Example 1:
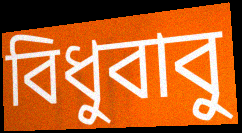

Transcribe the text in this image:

বিধুবাবু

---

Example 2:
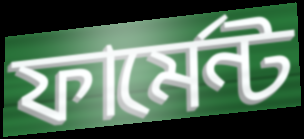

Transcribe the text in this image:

ফার্মেন্ট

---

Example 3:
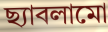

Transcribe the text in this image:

ছ্যাবলামো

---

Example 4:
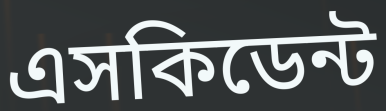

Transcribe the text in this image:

এসকিডেন্ট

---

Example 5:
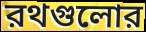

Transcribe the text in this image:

রথগুলোর